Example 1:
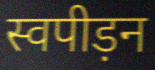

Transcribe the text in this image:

स्वपीड़न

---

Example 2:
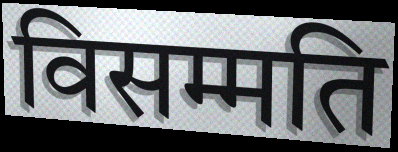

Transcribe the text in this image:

विसम्मति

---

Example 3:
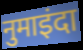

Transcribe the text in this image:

नुमाइंदा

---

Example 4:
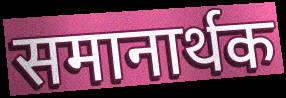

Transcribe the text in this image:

समानार्थक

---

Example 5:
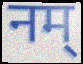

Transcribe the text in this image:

नम्